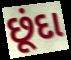
છૂંદા